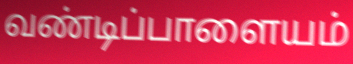
வண்டிப்பாளையம்